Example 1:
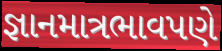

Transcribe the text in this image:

જ્ઞાનમાત્રભાવપણે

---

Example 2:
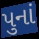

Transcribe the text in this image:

પુનાં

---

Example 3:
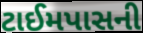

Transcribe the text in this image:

ટાઈમપાસની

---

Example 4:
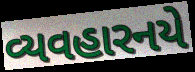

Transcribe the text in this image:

વ્યવહારનયે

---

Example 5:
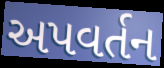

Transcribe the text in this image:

અપવર્તન